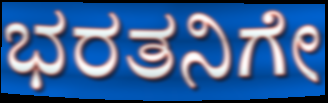
ಭರತನಿಗೇ